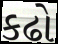
કઢો